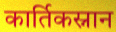
कार्तिकस्नान